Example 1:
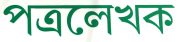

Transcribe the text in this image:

পত্রলেখক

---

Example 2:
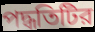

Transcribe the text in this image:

পদ্ধতিটির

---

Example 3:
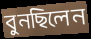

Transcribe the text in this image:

বুনছিলেন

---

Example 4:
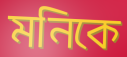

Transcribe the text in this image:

মনিকে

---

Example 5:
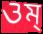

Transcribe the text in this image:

ওম্